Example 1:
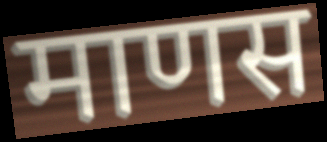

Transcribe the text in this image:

माणस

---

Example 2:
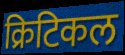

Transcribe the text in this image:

क्रिटिकल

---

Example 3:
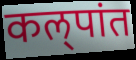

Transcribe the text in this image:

कल्पांत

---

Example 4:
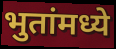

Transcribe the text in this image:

भुतांमध्ये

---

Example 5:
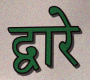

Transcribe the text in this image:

द्वारे